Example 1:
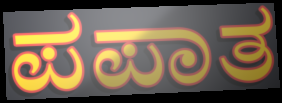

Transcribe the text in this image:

ಪಪಾತ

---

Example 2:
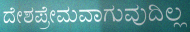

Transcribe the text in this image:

ದೇಶಪ್ರೇಮವಾಗುವುದಿಲ್ಲ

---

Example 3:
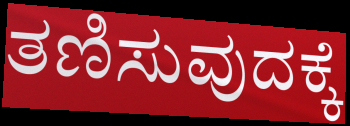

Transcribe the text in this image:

ತಣಿಸುವುದಕ್ಕೆ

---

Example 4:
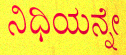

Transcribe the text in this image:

ನಿಧಿಯನ್ನೇ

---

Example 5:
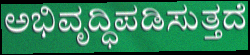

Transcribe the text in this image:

ಅಭಿವೃದ್ಧಿಪಡಿಸುತ್ತದೆ